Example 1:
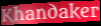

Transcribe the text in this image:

Khandaker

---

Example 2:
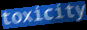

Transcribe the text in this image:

toxicity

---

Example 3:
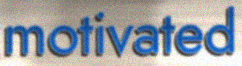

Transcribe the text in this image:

motivated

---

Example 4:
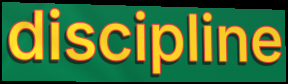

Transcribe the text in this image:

discipline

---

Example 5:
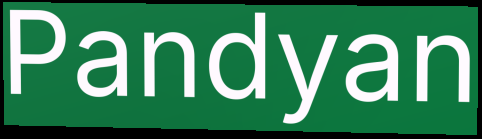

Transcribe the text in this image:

Pandyan